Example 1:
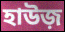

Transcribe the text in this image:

হাউজ়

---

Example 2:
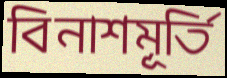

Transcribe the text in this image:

বিনাশমূর্তি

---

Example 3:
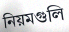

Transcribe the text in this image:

নিয়মগুলি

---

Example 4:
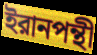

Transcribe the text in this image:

ইরানপন্থী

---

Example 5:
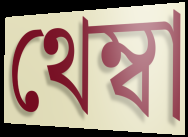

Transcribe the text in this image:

থেম্বা